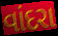
વાંદરા